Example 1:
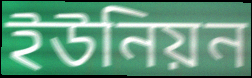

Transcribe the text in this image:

ইউনিয়ন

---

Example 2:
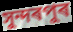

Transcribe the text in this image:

সুন্দৰপুৰ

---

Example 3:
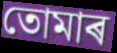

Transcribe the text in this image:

তোমাৰ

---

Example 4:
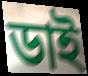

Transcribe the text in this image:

ডাই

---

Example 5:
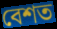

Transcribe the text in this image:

বেশত